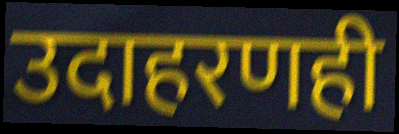
उदाहरणही